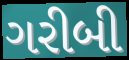
ગરીબી